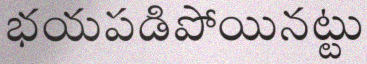
భయపడిపోయినట్టు